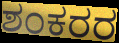
ಶಂಕರರ